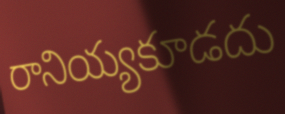
రానియ్యకూడదు